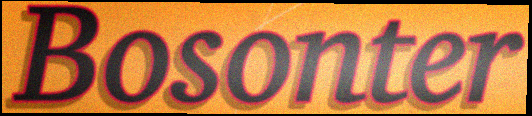
Bosonter